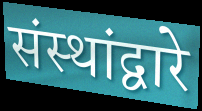
संस्थांद्वारे